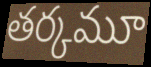
తర్కమూ